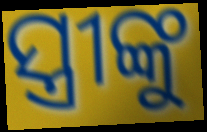
ସ୍ତ୍ରୀଙ୍କୁ